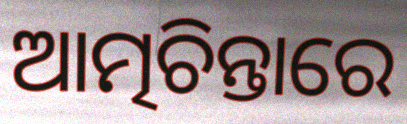
ଆତ୍ମଚିନ୍ତାରେ